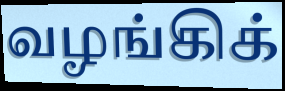
வழங்கிக்